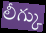
లీగ్కు